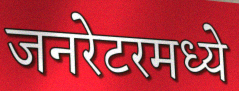
जनरेटरमध्ये